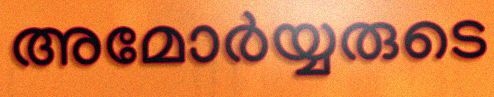
അമോർയ്യരുടെ